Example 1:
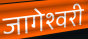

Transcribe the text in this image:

जागेश्वरी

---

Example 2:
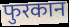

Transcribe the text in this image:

फुरकान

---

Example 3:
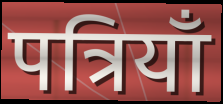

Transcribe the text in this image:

पत्रियाँ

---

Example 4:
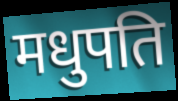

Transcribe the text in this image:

मधुपति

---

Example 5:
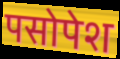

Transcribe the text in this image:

पसोपेश